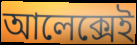
আলেক্সেই